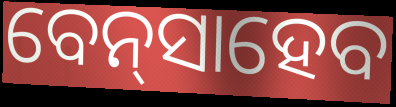
ବେନ୍‌ସାହେବ